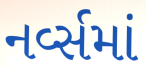
નર્વ્સમાં